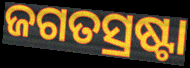
ଜଗତସ୍ରଷ୍ଟା